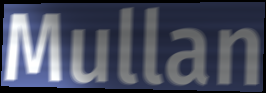
Mullan